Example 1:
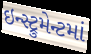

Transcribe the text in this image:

ઇન્સ્ટ્રુમેન્ટમાં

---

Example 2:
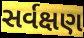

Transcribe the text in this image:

સર્વક્ષણ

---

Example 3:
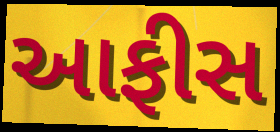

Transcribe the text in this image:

આફીસ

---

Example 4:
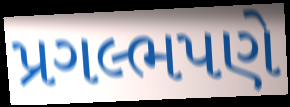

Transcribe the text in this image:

પ્રગલ્ભપણે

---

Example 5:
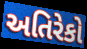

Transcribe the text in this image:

અતિરેકો